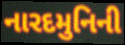
નારદમુનિની